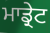
ਮਾਡ੍ਰੇਟ